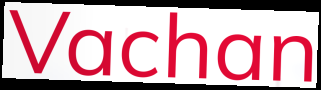
Vachan